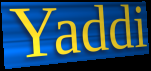
Yaddi